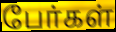
பேர்கள்